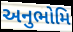
અનુભોમિ